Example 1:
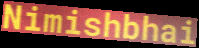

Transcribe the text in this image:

Nimishbhai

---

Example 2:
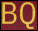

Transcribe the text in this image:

BQ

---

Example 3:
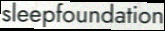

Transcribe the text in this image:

sleepfoundation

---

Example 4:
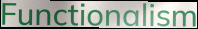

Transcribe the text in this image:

Functionalism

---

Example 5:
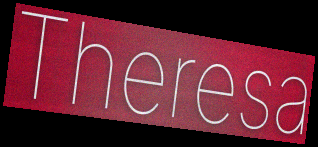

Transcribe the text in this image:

Theresa